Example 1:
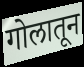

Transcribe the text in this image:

गोलातून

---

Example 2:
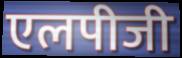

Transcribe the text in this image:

एलपीजी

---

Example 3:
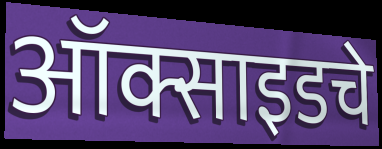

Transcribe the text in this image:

ऑक्साइडचे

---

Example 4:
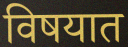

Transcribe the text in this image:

विषयात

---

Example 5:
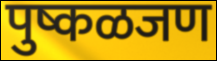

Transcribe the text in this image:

पुष्कळजण